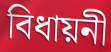
বিধায়নী